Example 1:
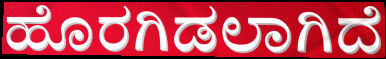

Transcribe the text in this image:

ಹೊರಗಿಡಲಾಗಿದೆ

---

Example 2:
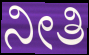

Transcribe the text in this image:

ನೀತಿ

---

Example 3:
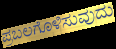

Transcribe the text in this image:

ಪ್ರಬಲಗೊಳಿಸುವುದು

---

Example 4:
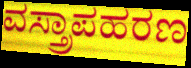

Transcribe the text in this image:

ವಸ್ತ್ರಾಪಹರಣ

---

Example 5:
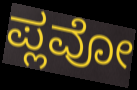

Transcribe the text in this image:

ಪ್ಲವೋ